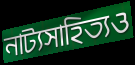
নাট্যসাহিত্যও